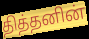
தித்தனின்